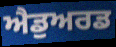
ਐਡੁਅਰਡ